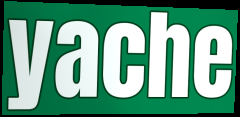
yache